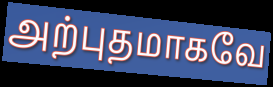
அற்புதமாகவே